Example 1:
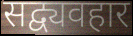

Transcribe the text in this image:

सद्व्यवहार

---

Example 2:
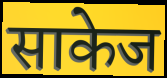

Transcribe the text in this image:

साकेज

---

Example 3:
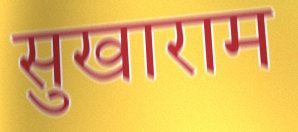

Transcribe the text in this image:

सुखाराम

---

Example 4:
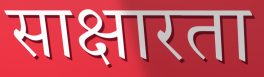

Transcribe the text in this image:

साक्षारता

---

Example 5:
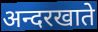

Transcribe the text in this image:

अन्दरखाते